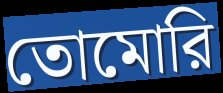
তোমোরি